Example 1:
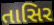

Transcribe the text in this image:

તાસિર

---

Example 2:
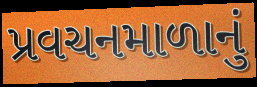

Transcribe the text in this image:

પ્રવચનમાળાનું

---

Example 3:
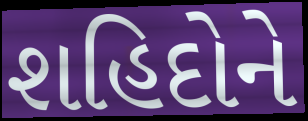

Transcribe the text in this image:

શહિદોને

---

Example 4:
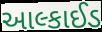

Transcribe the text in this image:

આલ્કાઈડ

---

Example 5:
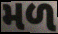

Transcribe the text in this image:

મળ